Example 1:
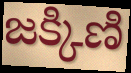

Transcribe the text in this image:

జక్కిణి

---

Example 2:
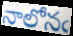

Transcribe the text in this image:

నాలోనఁ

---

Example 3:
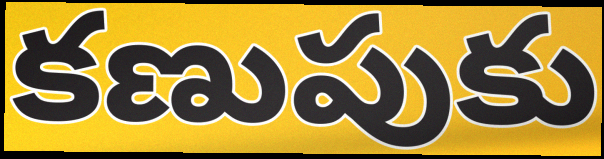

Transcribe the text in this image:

కణుపుకు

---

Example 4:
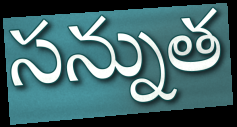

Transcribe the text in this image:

సన్నుత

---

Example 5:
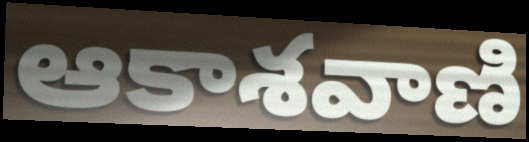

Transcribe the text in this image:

ఆకాశవాణి